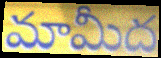
మామీద